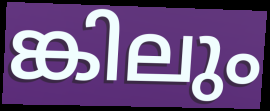
ങ്കിലും